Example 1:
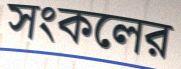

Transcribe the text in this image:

সংকলের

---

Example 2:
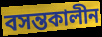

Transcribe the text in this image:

বসন্তকালীন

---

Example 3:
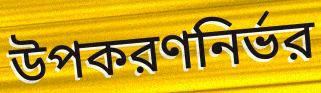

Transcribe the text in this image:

উপকরণনির্ভর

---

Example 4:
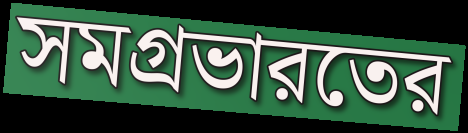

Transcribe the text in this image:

সমগ্রভারতের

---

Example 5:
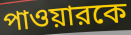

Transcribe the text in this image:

পাওয়ারকে